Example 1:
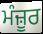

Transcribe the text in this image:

ਮੰਜ਼ੂਰ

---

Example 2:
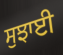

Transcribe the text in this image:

ਸੁਝਾਈ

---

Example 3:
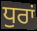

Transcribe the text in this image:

ਧੁਰਾਂ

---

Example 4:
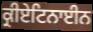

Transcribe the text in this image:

ਕ੍ਰੀਏਟਿਨਾਈਨ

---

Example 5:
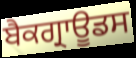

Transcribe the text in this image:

ਬੈਕਗ੍ਰਾਊਡਸ